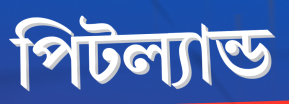
পিটল্যান্ড